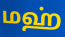
மஹ்